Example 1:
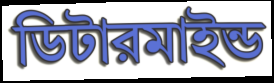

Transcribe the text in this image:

ডিটারমাইন্ড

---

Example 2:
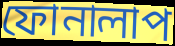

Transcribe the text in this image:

ফোনালাপ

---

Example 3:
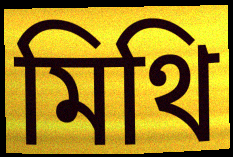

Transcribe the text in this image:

মিথি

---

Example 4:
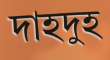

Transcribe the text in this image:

দাহদুহ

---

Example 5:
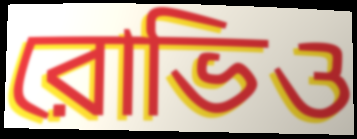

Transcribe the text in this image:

রোভিও